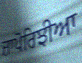
ਜ਼ਾਪੋਰਿਝੀਆ